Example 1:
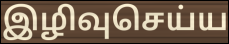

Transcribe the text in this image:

இழிவுசெய்ய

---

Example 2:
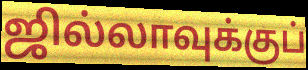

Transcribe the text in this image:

ஜில்லாவுக்குப்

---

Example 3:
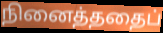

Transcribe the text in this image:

நினைத்ததைப்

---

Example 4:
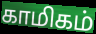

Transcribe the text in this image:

காமிகம்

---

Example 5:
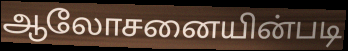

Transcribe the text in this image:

ஆலோசனையின்படி